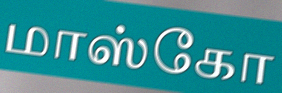
மாஸ்கோ